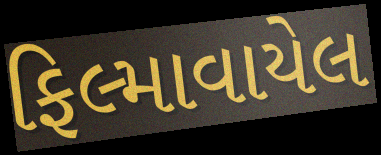
ફિલ્માવાયેલ